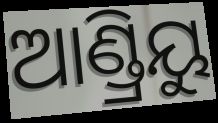
ଆଣ୍ଡ୍ରିୟୁ